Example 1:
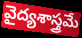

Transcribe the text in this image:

వైద్యశాస్త్రమే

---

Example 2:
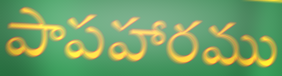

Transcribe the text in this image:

పాపహారము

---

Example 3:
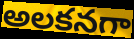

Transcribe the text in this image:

అలకనగా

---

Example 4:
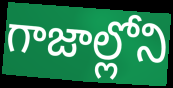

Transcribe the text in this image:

గాజాల్లోని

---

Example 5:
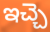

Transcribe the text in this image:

ఇచ్చె